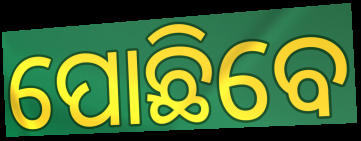
ପୋଛିବେ